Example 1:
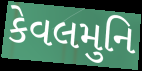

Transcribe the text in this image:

કેવલમુનિ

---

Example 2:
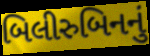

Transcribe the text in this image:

બિલીરુબિનનું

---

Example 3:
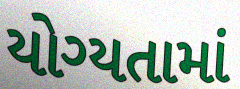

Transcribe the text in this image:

યોગ્યતામાં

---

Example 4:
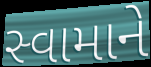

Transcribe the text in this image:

સ્વામાને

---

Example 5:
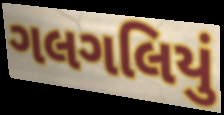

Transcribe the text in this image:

ગલગલિયું